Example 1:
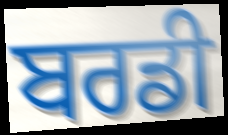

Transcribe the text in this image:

ਬਰਡੀ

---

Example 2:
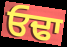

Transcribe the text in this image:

ਓਢਾ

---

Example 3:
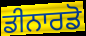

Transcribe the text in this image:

ਡੀਨਾਰਡੋ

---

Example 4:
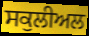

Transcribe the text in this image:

ਸਕੁਲੀਅਲ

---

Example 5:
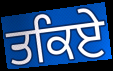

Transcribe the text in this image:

ਤਕਿਏ